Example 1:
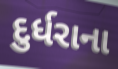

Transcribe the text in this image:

દુર્ધરાના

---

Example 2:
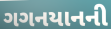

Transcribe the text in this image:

ગગનયાનની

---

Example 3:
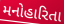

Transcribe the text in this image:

મનોહારિતા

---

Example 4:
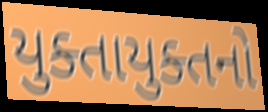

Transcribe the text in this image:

યુક્તાયુક્તનો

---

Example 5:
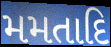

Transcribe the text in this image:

મમતાદિ